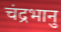
चंद्रभानु